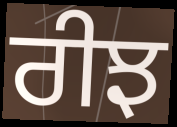
ਰੀਝ